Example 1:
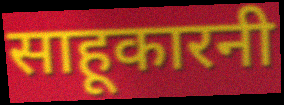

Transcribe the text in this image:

साहूकारनी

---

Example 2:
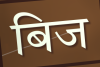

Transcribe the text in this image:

बिज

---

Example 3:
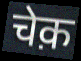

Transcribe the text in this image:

चेक़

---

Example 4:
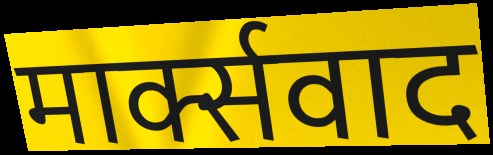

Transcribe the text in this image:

मार्क्सवाद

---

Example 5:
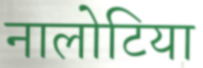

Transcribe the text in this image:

नालोटिया